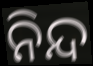
ନିନ୍ଦ